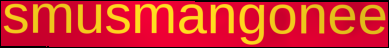
smusmangonee